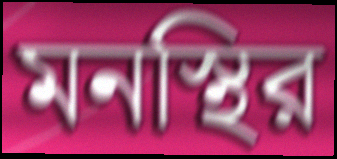
মনস্থির